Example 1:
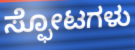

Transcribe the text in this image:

ಸ್ಫೋಟಗಳು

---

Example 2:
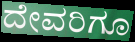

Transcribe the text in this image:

ದೇವರಿಗೂ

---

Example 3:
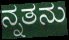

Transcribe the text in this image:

ನ್ನತನು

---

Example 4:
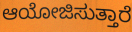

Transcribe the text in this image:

ಆಯೋಜಿಸುತ್ತಾರೆ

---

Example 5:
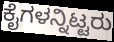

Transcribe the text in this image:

ಕೈಗಳನ್ನಿಟ್ಟರು